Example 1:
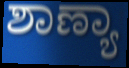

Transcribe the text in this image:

ಶಾಣ್ಯಾ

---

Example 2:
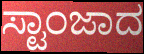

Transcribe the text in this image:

ಸ್ಟಾಂಜಾದ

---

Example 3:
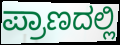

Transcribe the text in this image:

ಪ್ರಾಣದಲ್ಲಿ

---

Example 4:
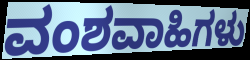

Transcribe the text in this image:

ವಂಶವಾಹಿಗಳು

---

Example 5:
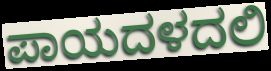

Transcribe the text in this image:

ಪಾಯದಳದಲಿ